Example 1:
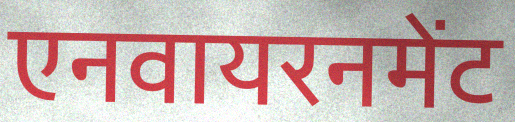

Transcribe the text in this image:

एनवायरनमेंट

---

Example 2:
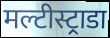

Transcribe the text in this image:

मल्टीस्ट्राडा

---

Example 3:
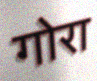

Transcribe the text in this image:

गोरा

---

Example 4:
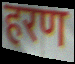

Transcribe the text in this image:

हरण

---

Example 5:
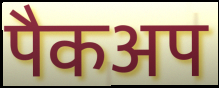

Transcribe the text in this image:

पैकअप